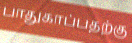
பாதுகாப்பதற்கு